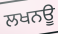
ਲਖਨਊ